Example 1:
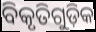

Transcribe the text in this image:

ବିକୃତିଗୁଡ଼ିକ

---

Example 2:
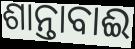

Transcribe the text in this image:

ଶାନ୍ତାବାଈ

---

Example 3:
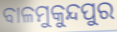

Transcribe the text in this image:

ବାଳମୁକୁନ୍ଦପୁର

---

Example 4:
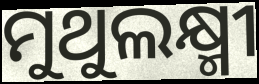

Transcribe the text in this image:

ମୁଥୁଲକ୍ଷ୍ମୀ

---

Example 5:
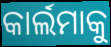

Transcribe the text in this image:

କାର୍ଲମାକୁ